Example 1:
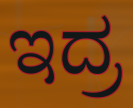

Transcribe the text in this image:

ಇದ್ರ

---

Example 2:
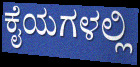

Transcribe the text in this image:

ಕೈಯಗಳಲ್ಲಿ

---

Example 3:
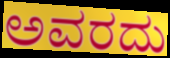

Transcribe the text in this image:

ಅವರದು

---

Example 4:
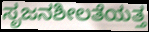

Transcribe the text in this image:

ಸೃಜನಶೀಲತೆಯತ್ತ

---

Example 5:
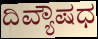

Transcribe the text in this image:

ದಿವ್ಯೌಷಧ